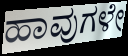
ಹಾವುಗಳೇ